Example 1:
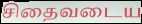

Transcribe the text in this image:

சிதைவடைய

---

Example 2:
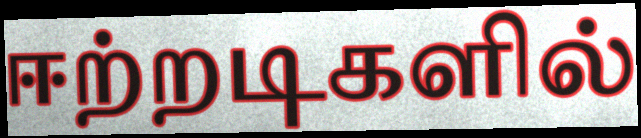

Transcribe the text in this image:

ஈற்றடிகளில்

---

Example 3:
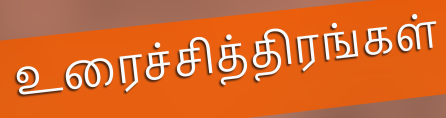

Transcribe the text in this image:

உரைச்சித்திரங்கள்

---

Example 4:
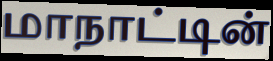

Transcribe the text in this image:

மாநாட்டின்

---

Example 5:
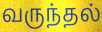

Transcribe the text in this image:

வருந்தல்